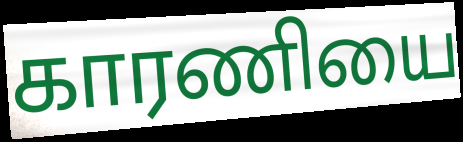
காரணியை